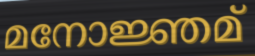
മനോജ്ഞമ്